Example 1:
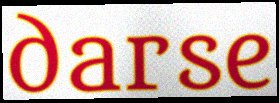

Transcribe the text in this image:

darse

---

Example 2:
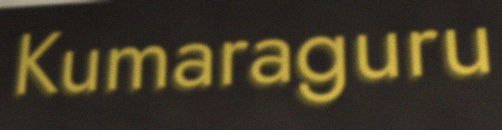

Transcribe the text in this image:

Kumaraguru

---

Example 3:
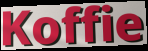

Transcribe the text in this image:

Koffie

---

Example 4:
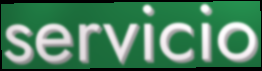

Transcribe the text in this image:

servicio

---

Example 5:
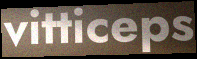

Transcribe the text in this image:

vitticeps